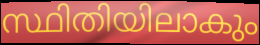
സ്ഥിതിയിലാകും